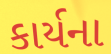
કાર્યના